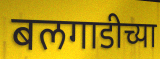
बलगाडीच्या